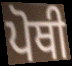
ਪੋਥੀ